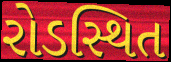
રોડસ્થિત